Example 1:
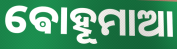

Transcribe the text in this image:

ଵୋହୂମାଆ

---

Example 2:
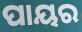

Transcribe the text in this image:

ପାୟର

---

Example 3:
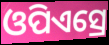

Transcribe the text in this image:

ଓପିଏସ୍ରେ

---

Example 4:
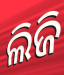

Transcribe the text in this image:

ଲିଜି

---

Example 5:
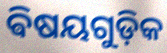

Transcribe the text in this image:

ଵିଷୟଗୁଡ଼ିକ